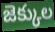
జెక్కుల